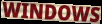
WINDOWS